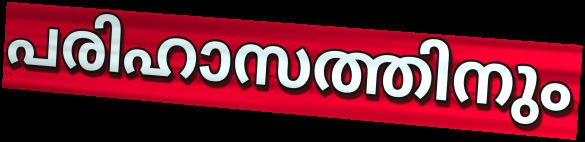
പരിഹാസത്തിനും